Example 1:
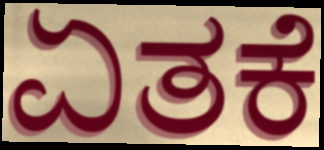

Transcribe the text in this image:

ಏತಕೆ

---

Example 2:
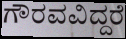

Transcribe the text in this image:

ಗೌರವವಿದ್ದರೆ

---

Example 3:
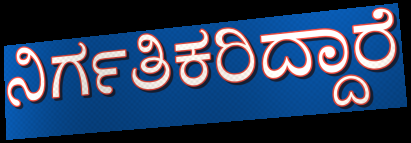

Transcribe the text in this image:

ನಿರ್ಗತಿಕರಿದ್ದಾರೆ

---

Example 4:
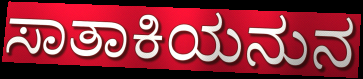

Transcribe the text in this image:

ಸಾತಾಕಿಯನುನ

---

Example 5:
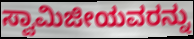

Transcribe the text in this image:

ಸ್ವಾಮಿಜೀಯವರನ್ನು